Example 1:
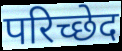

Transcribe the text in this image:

परिच्छेद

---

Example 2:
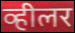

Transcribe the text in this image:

व्हीलर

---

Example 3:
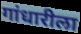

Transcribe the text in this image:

गांधारीला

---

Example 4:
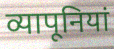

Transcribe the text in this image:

व्यापूनियां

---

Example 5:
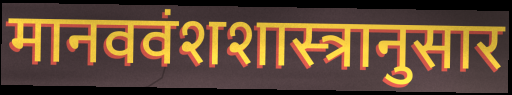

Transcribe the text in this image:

मानववंशशास्त्रानुसार